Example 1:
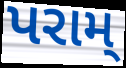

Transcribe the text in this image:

પરામ્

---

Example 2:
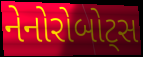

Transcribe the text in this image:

નેનોરોબોટ્સ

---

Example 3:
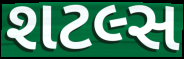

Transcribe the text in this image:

શટલ્સ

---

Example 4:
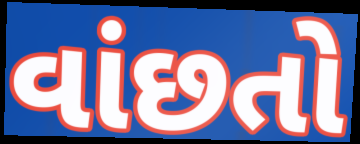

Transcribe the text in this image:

વાંછતો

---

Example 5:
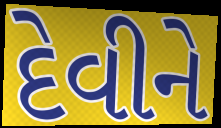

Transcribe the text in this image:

દેવીને